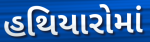
હથિયારોમાં